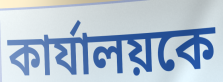
কার্যালয়কে